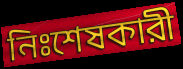
নিঃশেষকারী